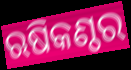
ଋଷିକଣ୍ଠର